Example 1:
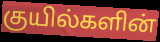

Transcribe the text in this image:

குயில்களின்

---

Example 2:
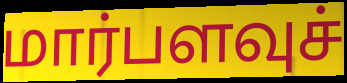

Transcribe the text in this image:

மார்பளவுச்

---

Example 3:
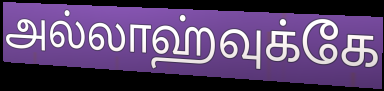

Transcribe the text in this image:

அல்லாஹ்வுக்கே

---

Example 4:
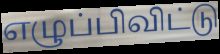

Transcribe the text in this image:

எழுப்பிவிட்டு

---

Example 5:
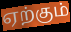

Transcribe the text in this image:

ஏற்கும்